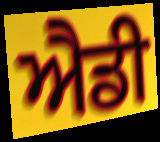
ਐਡੀ